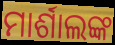
ମାର୍ଶାଲଙ୍କ